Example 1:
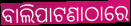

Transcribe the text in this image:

ବାଲିପାଟଣାଠାରେ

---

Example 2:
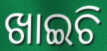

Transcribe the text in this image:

ଖାଇଚି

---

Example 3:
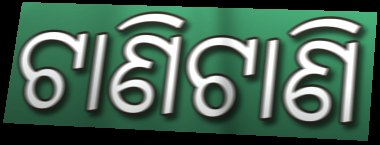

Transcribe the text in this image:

ଟାଣିଟାଣି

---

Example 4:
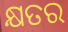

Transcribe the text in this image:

କ୍ଷତର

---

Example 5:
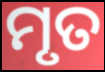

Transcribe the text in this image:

ମୃତ